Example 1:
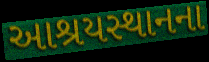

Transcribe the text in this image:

આશ્રયસ્થાનના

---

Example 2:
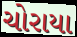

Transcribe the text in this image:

ચોરાયા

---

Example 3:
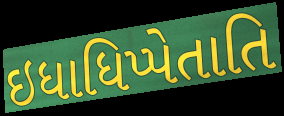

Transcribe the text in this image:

ઇધાધિપ્પેતાતિ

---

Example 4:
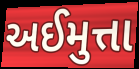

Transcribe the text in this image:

અઈમુત્તા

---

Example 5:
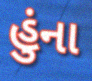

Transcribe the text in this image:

હુંના